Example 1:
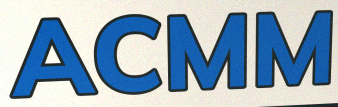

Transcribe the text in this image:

ACMM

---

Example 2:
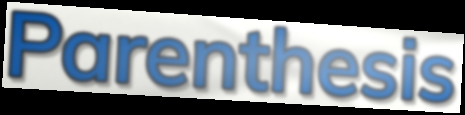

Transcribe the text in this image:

Parenthesis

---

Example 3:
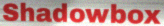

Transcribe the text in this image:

Shadowbox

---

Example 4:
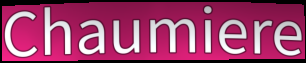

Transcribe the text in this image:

Chaumiere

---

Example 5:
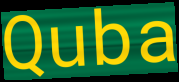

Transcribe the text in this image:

Quba